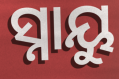
ସ୍ନାୟୁ